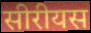
सीरीयस